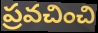
ప్రవచించి